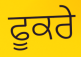
ਫੂਕਰੇ